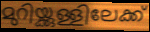
മുറിയ്ക്കുള്ളിലേക്ക്